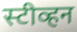
स्टीव्हन